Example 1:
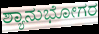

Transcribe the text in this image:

ಶ್ಯಾನುಭೋಗರ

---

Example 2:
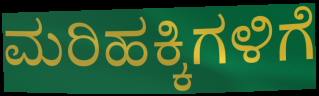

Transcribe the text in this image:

ಮರಿಹಕ್ಕಿಗಳಿಗೆ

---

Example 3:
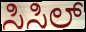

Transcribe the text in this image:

ಸಿಸಿಲ್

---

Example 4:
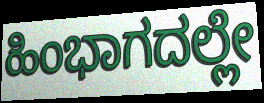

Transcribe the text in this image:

ಹಿಂಭಾಗದಲ್ಲೇ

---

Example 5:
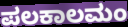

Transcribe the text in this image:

ಪಲಕಾಲಮಂ